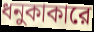
ধনুকাকারে